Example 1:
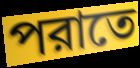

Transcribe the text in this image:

পরাতে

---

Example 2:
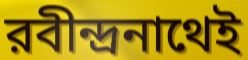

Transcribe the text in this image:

রবীন্দ্রনাথেই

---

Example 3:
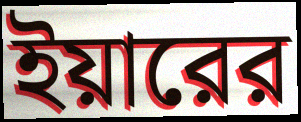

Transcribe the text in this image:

ইয়ারের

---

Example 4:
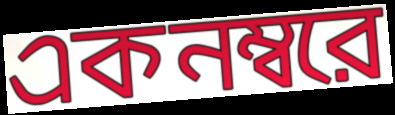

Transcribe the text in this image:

একনম্বরে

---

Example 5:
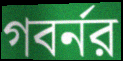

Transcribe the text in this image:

গবর্নর